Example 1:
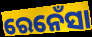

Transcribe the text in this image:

ରେନେଁସା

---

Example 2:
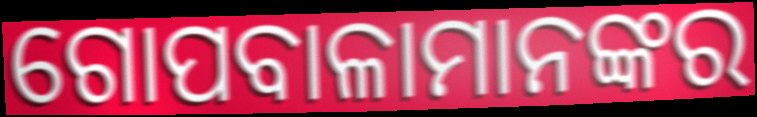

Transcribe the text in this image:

ଗୋପବାଳାମାନଙ୍କର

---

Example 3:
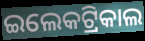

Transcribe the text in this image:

ଇଲେକଟ୍ରିକାଲ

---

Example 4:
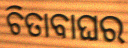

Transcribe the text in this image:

ଚିତାବାଘର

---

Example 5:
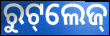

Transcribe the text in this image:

ରୁଟ୍‌ଲେଜ୍